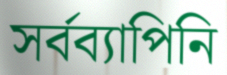
সর্বব্যাপিনি